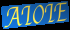
AIOIE